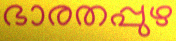
ഭാരതപ്പുഴ